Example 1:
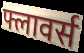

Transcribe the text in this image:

फ्लावर्स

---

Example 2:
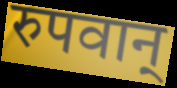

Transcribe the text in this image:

रुपवान्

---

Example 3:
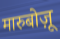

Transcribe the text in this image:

मारुबोज़ू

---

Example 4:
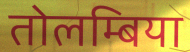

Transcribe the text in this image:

तोलम्बिया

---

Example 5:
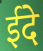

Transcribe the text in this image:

ईदे